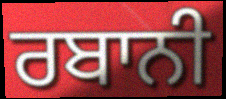
ਰਬਾਨੀ